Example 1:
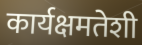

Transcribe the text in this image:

कार्यक्षमतेशी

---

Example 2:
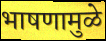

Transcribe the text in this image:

भाषणामुळे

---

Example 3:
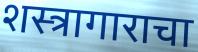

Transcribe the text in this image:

शस्त्रागाराचा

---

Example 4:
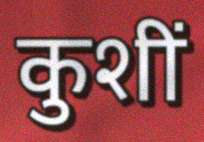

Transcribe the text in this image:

कुशीं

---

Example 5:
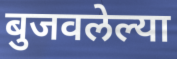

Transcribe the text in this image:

बुजवलेल्या